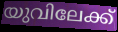
യുവിലേക്ക്